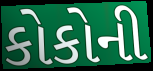
કોકોની